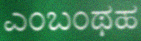
ಎಂಬಂಥಹ